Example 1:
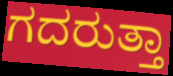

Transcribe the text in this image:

ಗದರುತ್ತಾ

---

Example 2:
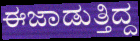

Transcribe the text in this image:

ಈಜಾಡುತ್ತಿದ್ದ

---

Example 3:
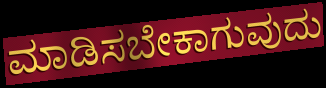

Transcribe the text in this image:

ಮಾಡಿಸಬೇಕಾಗುವುದು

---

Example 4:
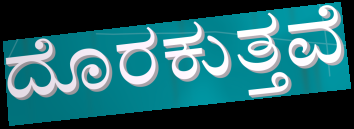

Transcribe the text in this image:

ದೊರಕುತ್ತವೆ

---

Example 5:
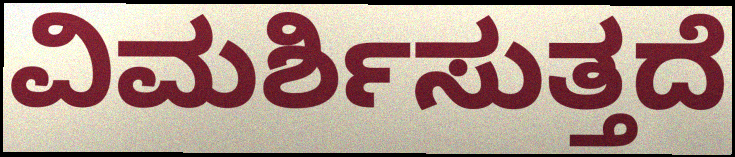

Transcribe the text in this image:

ವಿಮರ್ಶಿಸುತ್ತದೆ